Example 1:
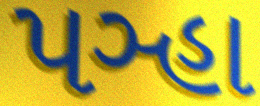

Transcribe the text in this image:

પઞ્હા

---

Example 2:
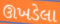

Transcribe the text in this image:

ઊખડેલા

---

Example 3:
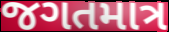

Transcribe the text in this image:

જગતમાત્ર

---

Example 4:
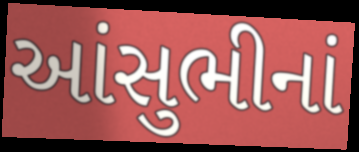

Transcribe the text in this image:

આંસુભીનાં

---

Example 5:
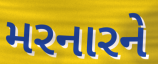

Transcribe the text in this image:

મરનારને